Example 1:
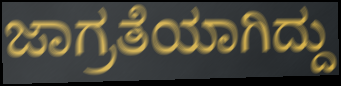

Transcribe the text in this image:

ಜಾಗ್ರತೆಯಾಗಿದ್ದು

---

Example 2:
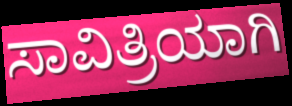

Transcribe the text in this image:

ಸಾವಿತ್ರಿಯಾಗಿ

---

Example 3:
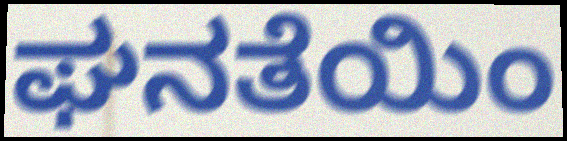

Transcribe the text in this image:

ಘನತೆಯಿಂ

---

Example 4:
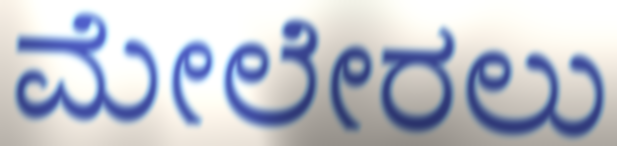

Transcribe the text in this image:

ಮೇಲೇರಲು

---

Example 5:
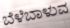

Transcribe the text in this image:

ಬೆಳೆಬಾಳುವ